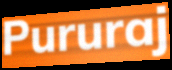
Pururaj